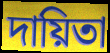
দায়িতা